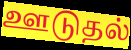
ஊடுதல்